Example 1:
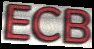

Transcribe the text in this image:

ECB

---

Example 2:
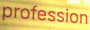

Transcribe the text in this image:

profession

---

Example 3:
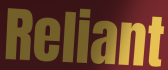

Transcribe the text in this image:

Reliant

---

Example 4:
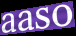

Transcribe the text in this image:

aaso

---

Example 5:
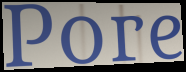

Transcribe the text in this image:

Pore